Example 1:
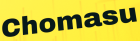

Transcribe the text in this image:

Chomasu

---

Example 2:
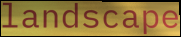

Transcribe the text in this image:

landscape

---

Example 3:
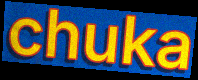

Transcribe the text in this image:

chuka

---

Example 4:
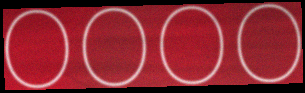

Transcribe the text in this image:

OOOO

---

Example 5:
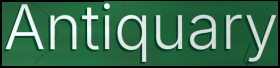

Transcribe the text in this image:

Antiquary